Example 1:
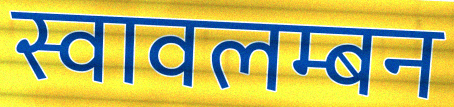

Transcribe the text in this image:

स्वावलम्बन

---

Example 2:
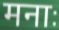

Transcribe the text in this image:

मनाः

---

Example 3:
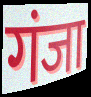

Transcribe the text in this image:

गंजा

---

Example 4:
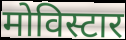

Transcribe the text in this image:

मोविस्टार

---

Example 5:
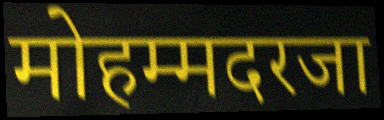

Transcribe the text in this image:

मोहम्मदरजा